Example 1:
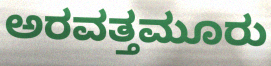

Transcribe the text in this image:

ಅರವತ್ತಮೂರು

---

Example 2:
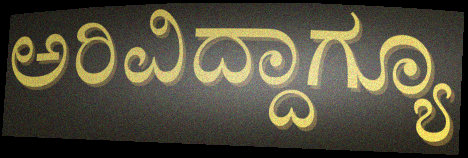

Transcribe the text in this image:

ಅರಿವಿದ್ದಾಗ್ಯೂ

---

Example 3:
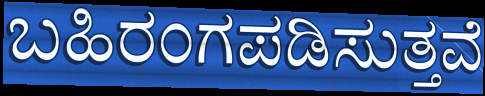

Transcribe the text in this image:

ಬಹಿರಂಗಪಡಿಸುತ್ತವೆ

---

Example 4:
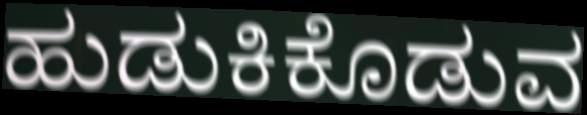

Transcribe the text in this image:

ಹುಡುಕಿಕೊಡುವ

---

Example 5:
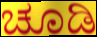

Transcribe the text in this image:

ಚೂಡಿ